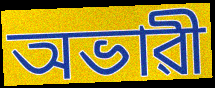
অভাৱী